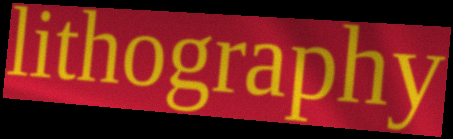
lithography